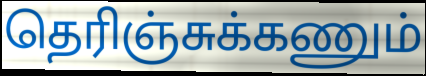
தெரிஞ்சுக்கணும்